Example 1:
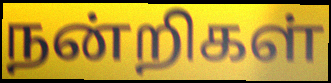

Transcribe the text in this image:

நன்றிகள்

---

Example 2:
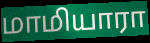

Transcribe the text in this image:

மாமியாரா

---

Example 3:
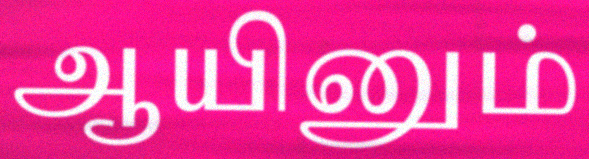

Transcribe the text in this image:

ஆயினும்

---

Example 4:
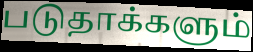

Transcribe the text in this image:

படுதாக்களும்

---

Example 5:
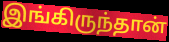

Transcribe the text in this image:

இங்கிருந்தான்